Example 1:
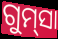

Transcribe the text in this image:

ଗୁମ୍‌ସା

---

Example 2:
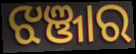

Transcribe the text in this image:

ଝଞ୍ଜାର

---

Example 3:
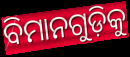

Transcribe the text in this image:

ବିମାନଗୁଡ଼ିକୁ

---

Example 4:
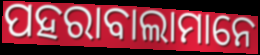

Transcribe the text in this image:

ପହରାବାଲାମାନେ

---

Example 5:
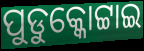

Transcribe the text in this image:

ପୁଡୁକ୍କୋଟ୍ଟାଇ